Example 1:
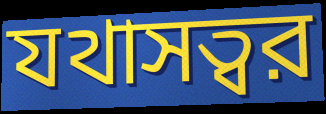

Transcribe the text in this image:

যথাসত্বর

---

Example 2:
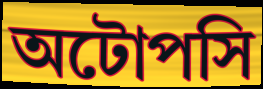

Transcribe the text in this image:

অটোপসি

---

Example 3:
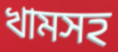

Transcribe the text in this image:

খামসহ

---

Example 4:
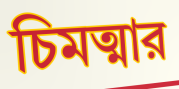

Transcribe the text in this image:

চিমত্মার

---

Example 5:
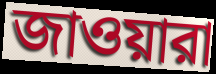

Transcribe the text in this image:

জাওয়ারা